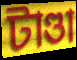
টাণ্ডা